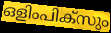
ഒളിംപിക്സും